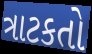
ત્રાટકતો